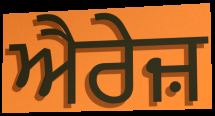
ਐਰੇਜ਼